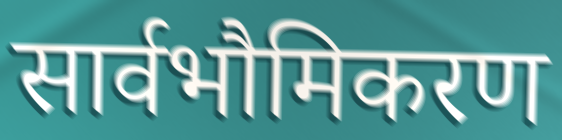
सार्वभौमिकरण